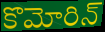
కొమోరిన్